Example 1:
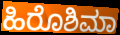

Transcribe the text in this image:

ಹಿರೊಶಿಮಾ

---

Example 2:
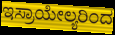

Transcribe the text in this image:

ಇಸ್ರಾಯೇಲ್ಯರಿಂದ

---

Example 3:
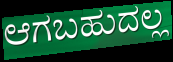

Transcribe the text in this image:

ಆಗಬಹುದಲ್ಲ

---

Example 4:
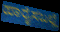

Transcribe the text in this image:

ಹಾರೈಸಬಲ್ಲೆ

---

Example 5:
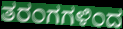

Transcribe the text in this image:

ತರಂಗಗಳಿಂದ